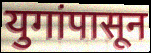
युगांपासून